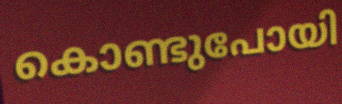
കൊണ്ടുപോയി